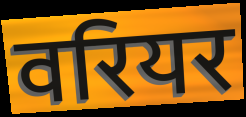
वरियर